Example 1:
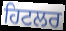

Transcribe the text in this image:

ਹਿਟਲਰ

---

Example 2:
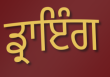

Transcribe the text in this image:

ਡ੍ਰਾਇੰਗ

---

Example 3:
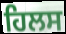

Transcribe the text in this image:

ਹਿਲਸ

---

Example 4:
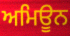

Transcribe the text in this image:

ਅਮਿਊਨ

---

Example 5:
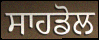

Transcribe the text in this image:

ਸਾਹਡੋਲ